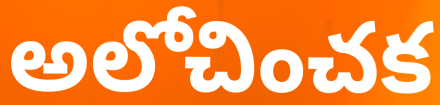
అలోచించక